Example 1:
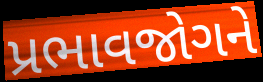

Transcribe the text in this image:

પ્રભાવજોગને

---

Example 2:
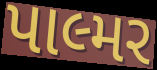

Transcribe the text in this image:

પાલ્મર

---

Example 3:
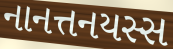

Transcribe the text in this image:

નાનત્તનયસ્સ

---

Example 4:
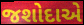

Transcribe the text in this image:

જશોદાએ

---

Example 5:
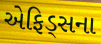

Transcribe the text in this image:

એફિડ્સના